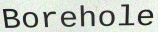
Borehole